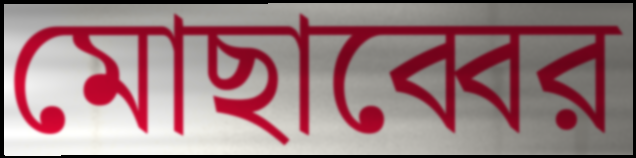
মোছাব্বের